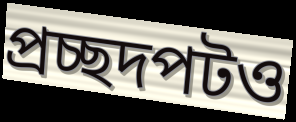
প্রচ্ছদপটও